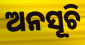
ଅନସୂଚି